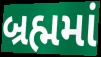
બ્રહ્મમાં